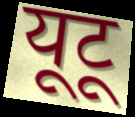
यूटू